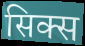
सिक्स